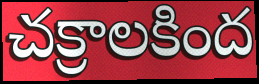
చక్రాలకింద